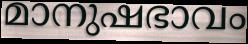
മാനുഷഭാവം